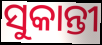
ସୁକାନ୍ତୀ